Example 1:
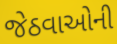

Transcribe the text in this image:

જેઠવાઓની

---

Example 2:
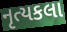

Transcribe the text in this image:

નૃત્યકલા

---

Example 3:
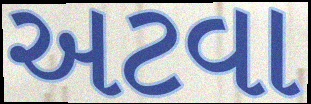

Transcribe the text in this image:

અટવા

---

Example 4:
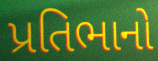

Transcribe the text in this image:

પ્રતિભાનો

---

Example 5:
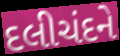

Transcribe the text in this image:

દલીચંદને